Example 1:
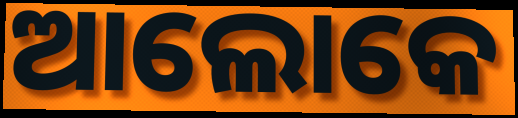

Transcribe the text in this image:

ଆଲୋକେ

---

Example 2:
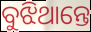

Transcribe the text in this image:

ବୁଝିଥାନ୍ତେ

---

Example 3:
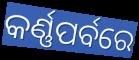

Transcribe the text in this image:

କର୍ଣ୍ଣପର୍ବରେ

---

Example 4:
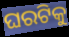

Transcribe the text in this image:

ଘରଟିକୁ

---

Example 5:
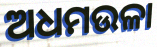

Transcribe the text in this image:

ଅଧମଉଳା